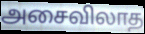
அசைவிலாத